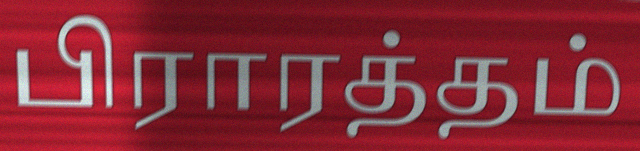
பிராரத்தம்